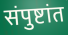
संपुष्टांत